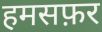
हमसफ़र